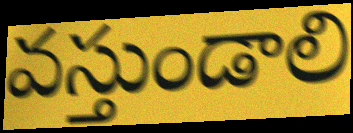
వస్తుండాలి